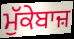
ਮੁੱਕੇਬਾਜ਼